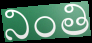
నింతి